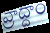
వ్రాద్దాం